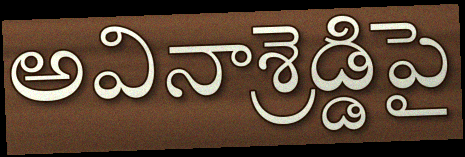
అవినాశ్రెడ్డిపై